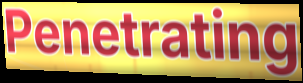
Penetrating